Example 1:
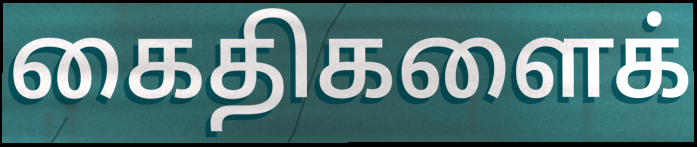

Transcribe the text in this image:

கைதிகளைக்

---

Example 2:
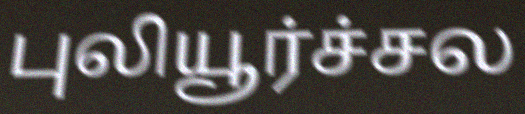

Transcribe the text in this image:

புலியூர்ச்சல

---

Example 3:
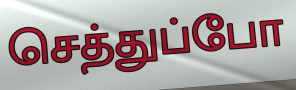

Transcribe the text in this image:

செத்துப்போ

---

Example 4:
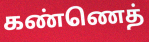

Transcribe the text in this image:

கண்ணெத்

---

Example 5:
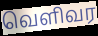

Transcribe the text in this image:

வெளிவர